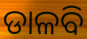
ଡାଳବି